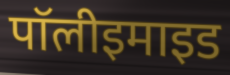
पॉलीइमाइड